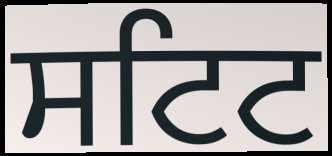
ਸਟਿਟ